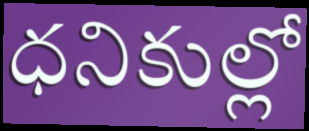
ధనికుల్లో